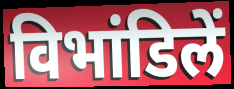
विभांडिलें